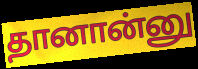
தானான்னு